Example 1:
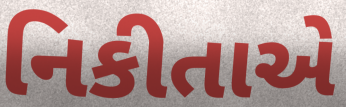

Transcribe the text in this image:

નિકીતાએ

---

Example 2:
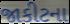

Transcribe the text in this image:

જાકીટના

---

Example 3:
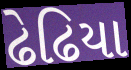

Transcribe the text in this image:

ઢેઢિયા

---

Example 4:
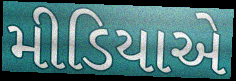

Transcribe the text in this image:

મીડિયાએ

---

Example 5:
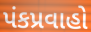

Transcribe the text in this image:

પંકપ્રવાહો